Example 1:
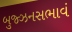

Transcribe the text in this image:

બુજ્ઝનસભાવં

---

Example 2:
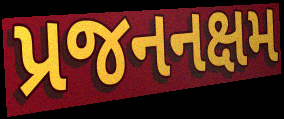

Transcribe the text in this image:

પ્રજનનક્ષમ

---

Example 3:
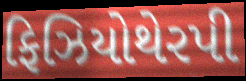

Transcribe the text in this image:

ફિઝિયોથેરપી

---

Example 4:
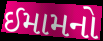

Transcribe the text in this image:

ઈમામનો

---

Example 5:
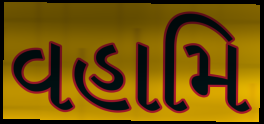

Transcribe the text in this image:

વહામિ